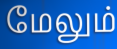
மேலும்